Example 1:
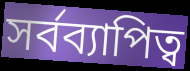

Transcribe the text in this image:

সর্বব্যাপিত্ব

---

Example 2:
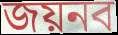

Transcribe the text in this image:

জয়নব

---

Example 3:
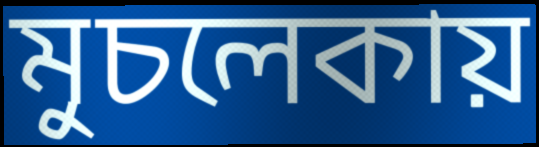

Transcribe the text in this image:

মুচলেকায়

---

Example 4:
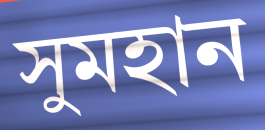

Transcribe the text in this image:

সুমহান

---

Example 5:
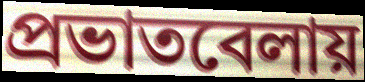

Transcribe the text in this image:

প্রভাতবেলায়